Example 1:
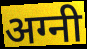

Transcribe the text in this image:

अग्नी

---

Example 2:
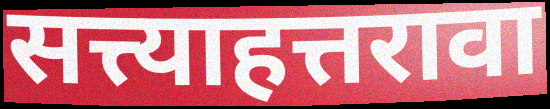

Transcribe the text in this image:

सत्त्याहत्तरावा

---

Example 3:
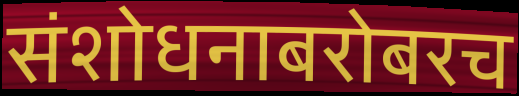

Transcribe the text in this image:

संशोधनाबरोबरच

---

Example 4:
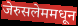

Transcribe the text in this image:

जेरुसलेममधून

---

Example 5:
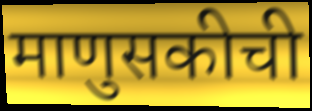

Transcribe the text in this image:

माणुसकीची